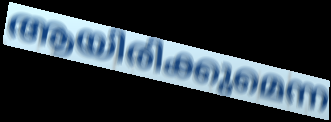
ആയിരിക്കുമെന്ന